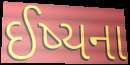
ઈષ્યના